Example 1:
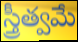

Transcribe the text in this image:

స్త్రీత్వమే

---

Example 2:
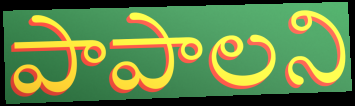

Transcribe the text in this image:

పాపాలని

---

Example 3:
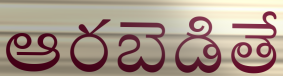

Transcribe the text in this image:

ఆరబెడితే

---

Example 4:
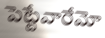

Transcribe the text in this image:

పెట్టేవారేమో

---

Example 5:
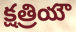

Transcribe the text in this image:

క్షత్రియౌ